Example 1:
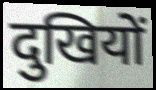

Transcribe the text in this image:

दुखियों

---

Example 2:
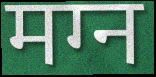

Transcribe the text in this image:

मग्‍न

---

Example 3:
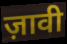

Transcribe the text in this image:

ज़ावी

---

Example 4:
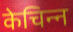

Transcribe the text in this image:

केचिन्न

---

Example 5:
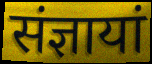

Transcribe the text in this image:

संज्ञायां